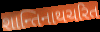
શાન્તિનાથચરિત